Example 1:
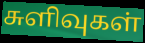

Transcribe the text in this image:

சுளிவுகள்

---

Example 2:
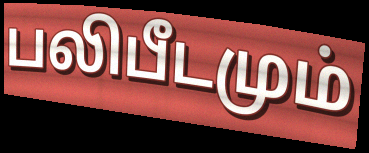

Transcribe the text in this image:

பலிபீடமும்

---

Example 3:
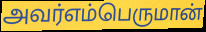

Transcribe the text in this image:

அவர்எம்பெருமான்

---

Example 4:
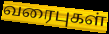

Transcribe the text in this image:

வரைபுகள்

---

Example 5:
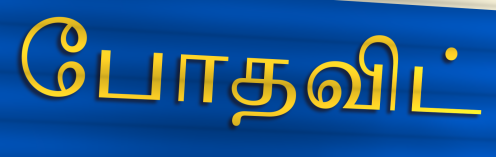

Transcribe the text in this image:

போதவிட்